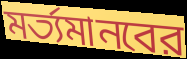
মর্ত্যমানবের